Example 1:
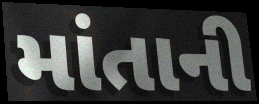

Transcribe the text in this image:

માંતાની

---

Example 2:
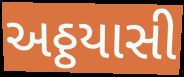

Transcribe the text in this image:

અઠ્ઠયાસી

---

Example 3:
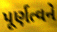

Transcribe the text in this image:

પૂર્ણત્વને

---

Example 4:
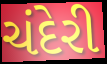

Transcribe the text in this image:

ચંદેરી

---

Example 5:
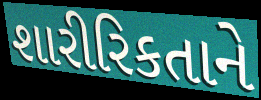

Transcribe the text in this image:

શારીરિકતાને